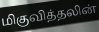
மிகுவித்தலின்